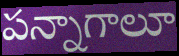
పన్నాగాలూ